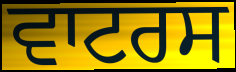
ਵਾਟਰਸ